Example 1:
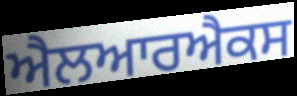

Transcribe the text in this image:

ਐਲਆਰਐਕਸ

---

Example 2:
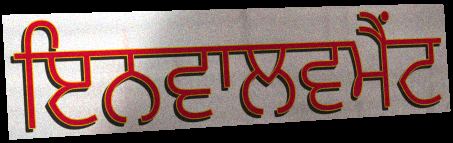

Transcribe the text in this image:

ਇਨਵਾਲਵਮੈਂਟ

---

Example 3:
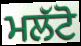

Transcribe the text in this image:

ਮਲੱਟੋ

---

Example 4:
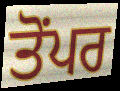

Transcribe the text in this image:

ਤੋਂਪਰ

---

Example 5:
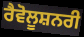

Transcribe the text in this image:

ਰੈਵੋਲੂਸ਼ਨਰੀ